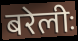
बरेलीः